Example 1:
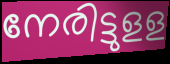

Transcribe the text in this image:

നേരിട്ടുളള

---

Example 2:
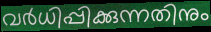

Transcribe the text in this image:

വർധിപ്പിക്കുന്നതിനും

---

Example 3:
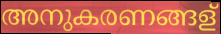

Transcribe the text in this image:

അനുകരണങ്ങള്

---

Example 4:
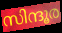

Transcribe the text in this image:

സിന്ദൂര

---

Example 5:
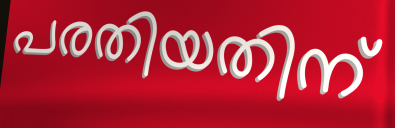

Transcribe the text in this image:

പരതിയതിന്